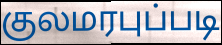
குலமரபுப்படி